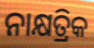
ନାକ୍ଷତ୍ରିକ